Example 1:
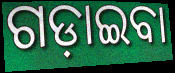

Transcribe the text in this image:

ଗଡ଼ାଇବା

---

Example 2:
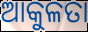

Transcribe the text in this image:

ଆକୁଳତା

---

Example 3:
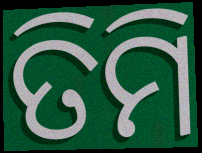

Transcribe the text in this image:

ତିମି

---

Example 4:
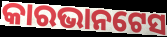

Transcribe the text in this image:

କାରଭାନଟେସ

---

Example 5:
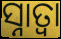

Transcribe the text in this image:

ସ୍ନାତ୍ବା